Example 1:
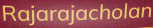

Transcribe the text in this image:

Rajarajacholan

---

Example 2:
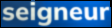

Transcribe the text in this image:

seigneur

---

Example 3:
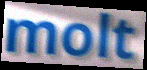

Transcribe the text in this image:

molt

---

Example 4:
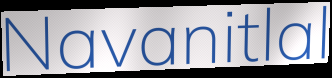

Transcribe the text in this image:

Navanitlal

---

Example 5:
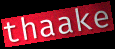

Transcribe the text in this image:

thaake